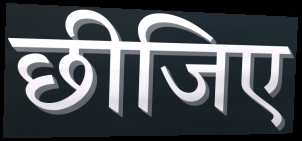
छीजिए